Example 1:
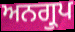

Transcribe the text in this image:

ਅਨਗ੍ਰੁਪ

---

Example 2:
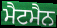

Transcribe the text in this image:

ਮੈਟਮੈਨ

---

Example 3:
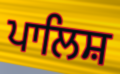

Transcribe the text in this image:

ਪਾਲਿਸ਼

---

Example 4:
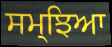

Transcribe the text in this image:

ਸਮ੍ਝਿਆ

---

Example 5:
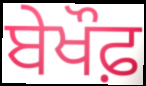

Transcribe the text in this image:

ਬੇਖੌਫ਼